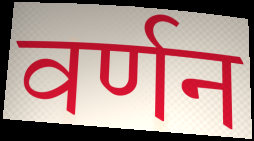
वर्णन